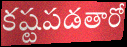
కష్టపడతారో